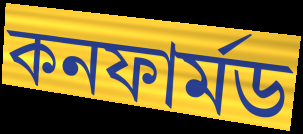
কনফার্মড